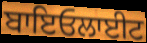
ਬਾਇਓਲਾਈਟ